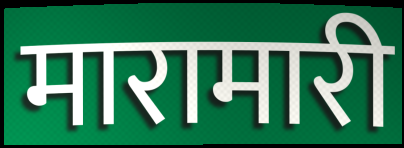
मारामारी